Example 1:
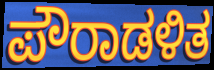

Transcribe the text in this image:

ಪೌರಾಡಳಿತ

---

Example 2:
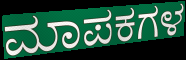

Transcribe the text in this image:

ಮಾಪಕಗಳ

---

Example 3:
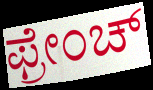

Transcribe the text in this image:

ಫ್ರೇಂಚ್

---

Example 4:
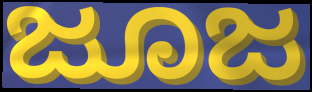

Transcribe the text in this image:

ಜೂಜ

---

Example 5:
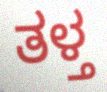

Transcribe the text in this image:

ತಳ್ತ